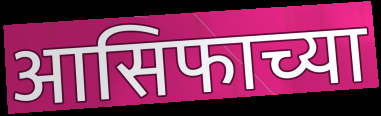
आसिफाच्या